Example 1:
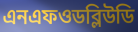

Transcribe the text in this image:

এনএফওডব্লিউডি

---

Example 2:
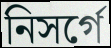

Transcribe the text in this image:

নিসর্গে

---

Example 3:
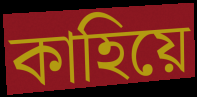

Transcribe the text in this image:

কাহিয়ে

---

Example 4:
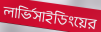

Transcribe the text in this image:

লার্ভিসাইডিংয়ের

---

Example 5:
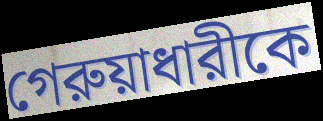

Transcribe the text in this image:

গেরুয়াধারীকে